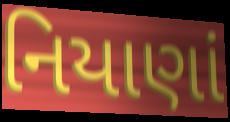
નિયાણાં